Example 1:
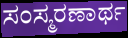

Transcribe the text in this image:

ಸಂಸ್ಮರಣಾರ್ಥ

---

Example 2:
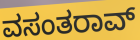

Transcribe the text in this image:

ವಸಂತರಾವ್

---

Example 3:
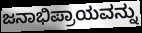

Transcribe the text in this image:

ಜನಾಭಿಪ್ರಾಯವನ್ನು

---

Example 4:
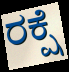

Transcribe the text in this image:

ರಕ್ಷೆ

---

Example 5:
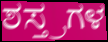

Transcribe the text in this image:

ಶಸ್ತ್ರಗಳ